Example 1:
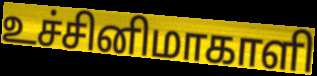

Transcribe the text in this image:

உச்சினிமாகாளி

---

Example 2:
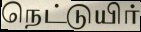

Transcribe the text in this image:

நெட்டுயிர்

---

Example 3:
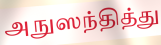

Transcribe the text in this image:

அநுஸந்தித்து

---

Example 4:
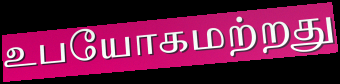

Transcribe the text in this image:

உபயோகமற்றது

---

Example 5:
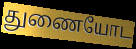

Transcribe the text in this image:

துணையோட